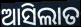
ଆସିଲାତ